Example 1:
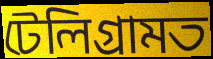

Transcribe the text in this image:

টেলিগ্ৰামত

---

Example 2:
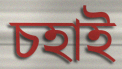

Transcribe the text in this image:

চহাই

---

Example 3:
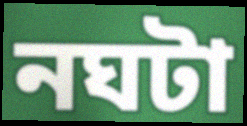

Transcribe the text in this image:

নঘটা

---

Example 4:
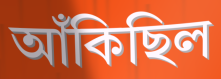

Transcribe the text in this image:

আঁকিছিল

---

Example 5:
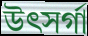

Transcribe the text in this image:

উৎসৰ্গা